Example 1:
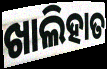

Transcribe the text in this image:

ଖାଲିହାତ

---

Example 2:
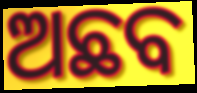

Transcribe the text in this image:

ଅଛବ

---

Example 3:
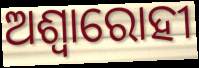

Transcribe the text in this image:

ଅଶ୍ଵାରୋହୀ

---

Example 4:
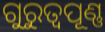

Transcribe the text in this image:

ଗୁରୁତ୍ବପୂଣ୍ଣ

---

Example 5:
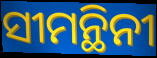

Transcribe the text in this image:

ସୀମନ୍ଥିନୀ